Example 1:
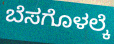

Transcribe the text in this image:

ಬೆಸಗೊಳಲ್ಕೆ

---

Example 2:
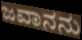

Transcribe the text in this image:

ಜವಾನನು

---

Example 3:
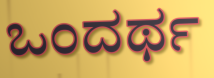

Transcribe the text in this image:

ಒಂದರ್ಥ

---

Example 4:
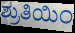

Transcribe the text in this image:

ಶ್ರುತಿಯಿಂ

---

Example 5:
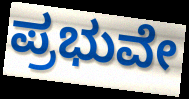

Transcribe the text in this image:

ಪ್ರಭುವೇ